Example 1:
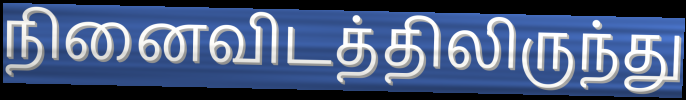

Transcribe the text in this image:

நினைவிடத்திலிருந்து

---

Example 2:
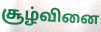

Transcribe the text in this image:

சூழ்வினை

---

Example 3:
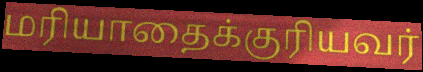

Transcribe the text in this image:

மரியாதைக்குரியவர்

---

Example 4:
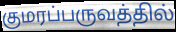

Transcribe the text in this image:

குமரப்பருவத்தில்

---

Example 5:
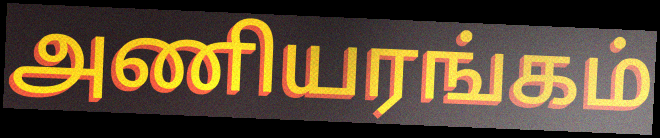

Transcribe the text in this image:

அணியரங்கம்